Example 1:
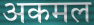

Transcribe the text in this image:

अकमल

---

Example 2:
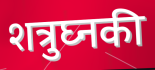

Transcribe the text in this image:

शत्रुघ्नकी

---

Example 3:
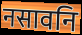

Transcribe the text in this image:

नसावनि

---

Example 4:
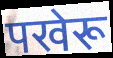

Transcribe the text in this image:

पखेरू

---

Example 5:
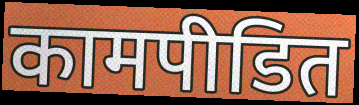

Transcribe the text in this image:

कामपीडित